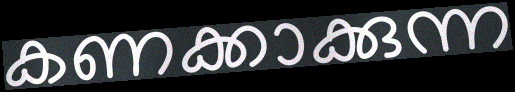
കണക്കാക്കുന്ന